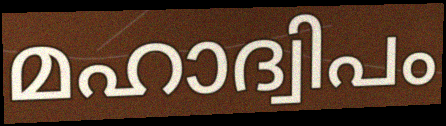
മഹാദ്വിപം